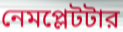
নেমপ্লেটটার